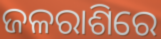
ଜଳରାଶିରେ